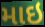
માઇ